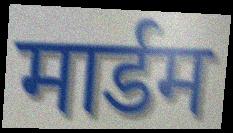
मार्डम